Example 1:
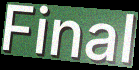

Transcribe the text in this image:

Final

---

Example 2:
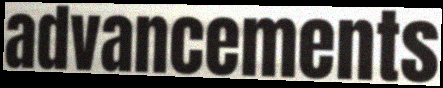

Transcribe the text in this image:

advancements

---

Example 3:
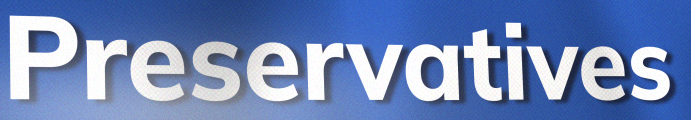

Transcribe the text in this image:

Preservatives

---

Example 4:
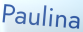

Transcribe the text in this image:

Paulina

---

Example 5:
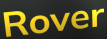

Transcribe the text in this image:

Rover